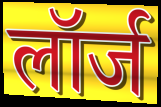
लॉर्ज